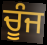
ਚੂੰਜ